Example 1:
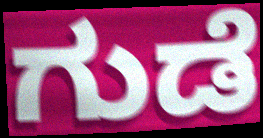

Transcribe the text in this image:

ಗುಡೆ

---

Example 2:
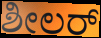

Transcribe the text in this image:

ಶೀಲರ್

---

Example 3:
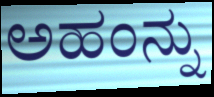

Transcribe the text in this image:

ಅಹಂನ್ನು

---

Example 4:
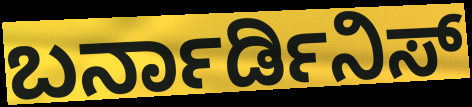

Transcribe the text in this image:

ಬರ್ನಾರ್ಡಿನಿಸ್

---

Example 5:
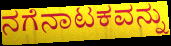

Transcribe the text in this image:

ನಗೆನಾಟಕವನ್ನು